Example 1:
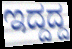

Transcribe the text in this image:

ಇದ್ದದ್ದ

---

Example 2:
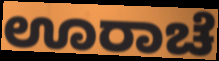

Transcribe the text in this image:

ಊರಾಚೆ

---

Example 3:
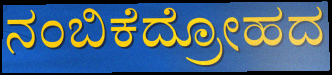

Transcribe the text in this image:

ನಂಬಿಕೆದ್ರೋಹದ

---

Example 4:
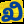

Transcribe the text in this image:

ಖಿ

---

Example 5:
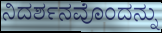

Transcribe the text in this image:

ನಿದರ್ಶನವೊಂದನ್ನು